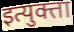
इत्युक्ता